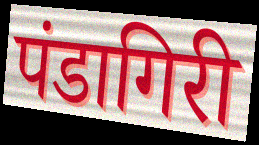
पंडागिरी